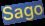
Sago